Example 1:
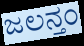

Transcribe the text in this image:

ಜಲನ್ತಂ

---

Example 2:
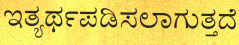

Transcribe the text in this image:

ಇತ್ಯರ್ಥಪಡಿಸಲಾಗುತ್ತದೆ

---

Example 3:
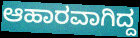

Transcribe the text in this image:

ಆಹಾರವಾಗಿದ್ದ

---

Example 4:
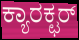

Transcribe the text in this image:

ಕ್ಯಾರಕ್ಟರ್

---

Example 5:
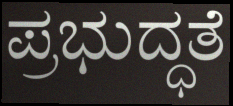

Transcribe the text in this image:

ಪ್ರಭುದ್ಧತೆ